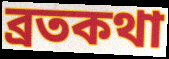
ব্রতকথা